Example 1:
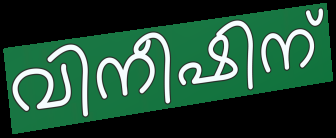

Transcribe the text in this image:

വിനീഷിന്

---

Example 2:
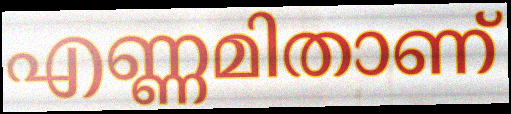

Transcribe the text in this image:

എണ്ണമിതാണ്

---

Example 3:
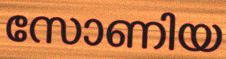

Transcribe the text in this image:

സോണിയ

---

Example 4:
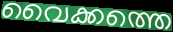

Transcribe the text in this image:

വൈക്കത്തെ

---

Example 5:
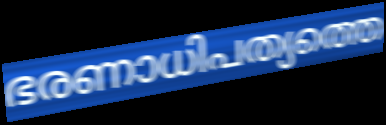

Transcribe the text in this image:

ഭരണാധിപത്യത്തെ